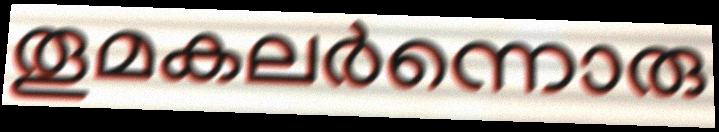
തൂമകലർന്നൊരു